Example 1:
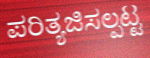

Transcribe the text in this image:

ಪರಿತ್ಯಜಿಸಲ್ಪಟ್ಟ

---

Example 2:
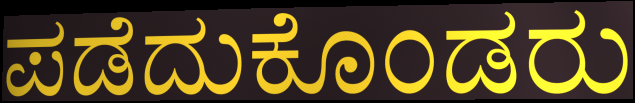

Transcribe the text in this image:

ಪಡೆದುಕೊಂಡರು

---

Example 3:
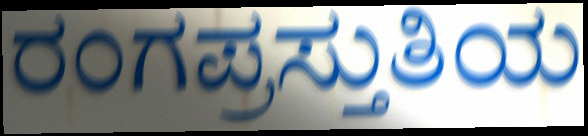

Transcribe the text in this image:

ರಂಗಪ್ರಸ್ತುತಿಯ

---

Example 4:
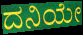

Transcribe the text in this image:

ದನಿಯೇ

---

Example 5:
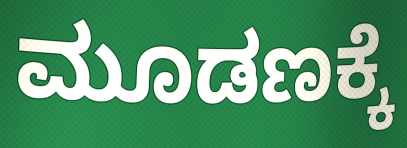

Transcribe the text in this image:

ಮೂಡಣಕ್ಕೆ